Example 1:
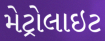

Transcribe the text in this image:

મેટ્રોલાઇટ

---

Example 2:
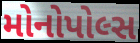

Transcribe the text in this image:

મોનોપોલ્સ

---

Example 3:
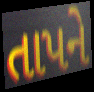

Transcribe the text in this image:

તાપને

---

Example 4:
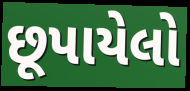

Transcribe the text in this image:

છૂપાયેલો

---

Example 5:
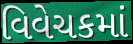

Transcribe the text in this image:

વિવેચકમાં